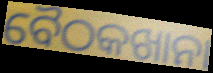
ବୈଠକଖାନା